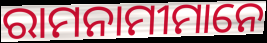
ରାମନାମୀମାନେ